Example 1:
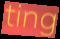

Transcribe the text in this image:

ting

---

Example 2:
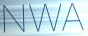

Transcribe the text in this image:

NWA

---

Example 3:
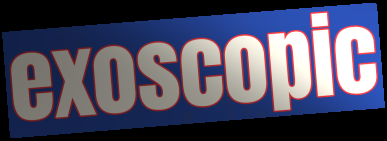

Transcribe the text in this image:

exoscopic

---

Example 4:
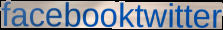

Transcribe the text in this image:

facebooktwitter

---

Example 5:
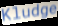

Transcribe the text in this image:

Kludge